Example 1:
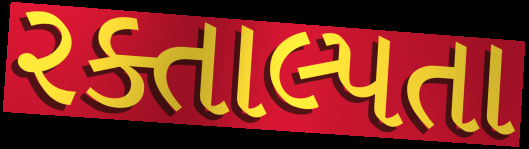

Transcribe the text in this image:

રક્તાલ્પતા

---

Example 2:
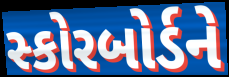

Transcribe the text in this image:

સ્કોરબોર્ડને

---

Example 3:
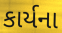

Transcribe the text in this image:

કાર્યના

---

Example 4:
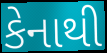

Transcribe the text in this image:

કેનાથી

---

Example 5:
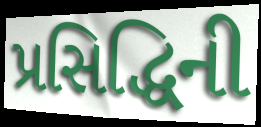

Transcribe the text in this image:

પ્રસિદ્ધિની